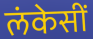
लंकेसीं